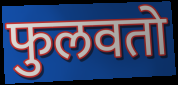
फुलवतो